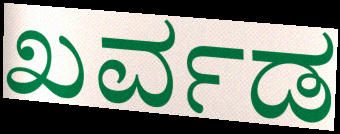
ಖರ್ವಡ